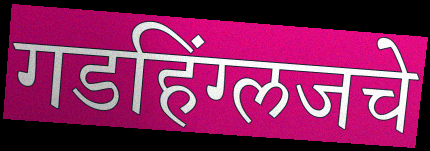
गडहिंग्लजचे